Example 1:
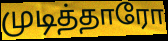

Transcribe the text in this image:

முடித்தாரோ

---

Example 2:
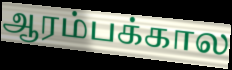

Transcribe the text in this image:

ஆரம்பக்கால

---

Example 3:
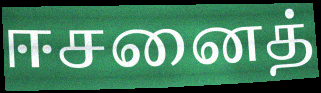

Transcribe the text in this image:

ஈசனைத்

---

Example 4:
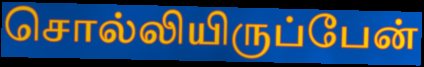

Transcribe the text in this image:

சொல்லியிருப்பேன்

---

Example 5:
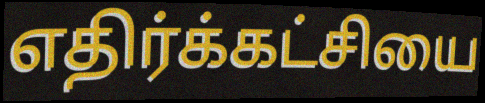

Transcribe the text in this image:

எதிர்க்கட்சியை